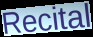
Recital